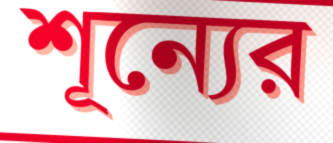
শূন্যের